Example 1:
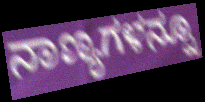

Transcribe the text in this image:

ನಾಣ್ಯಗಳನ್ನೂ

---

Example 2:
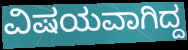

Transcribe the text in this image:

ವಿಷಯವಾಗಿದ್ದ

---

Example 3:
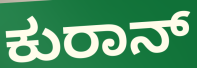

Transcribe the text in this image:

ಕುರಾನ್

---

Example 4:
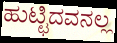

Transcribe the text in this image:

ಹುಟ್ಟಿದವನಲ್ಲ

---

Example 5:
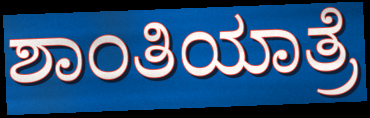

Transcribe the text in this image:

ಶಾಂತಿಯಾತ್ರೆ